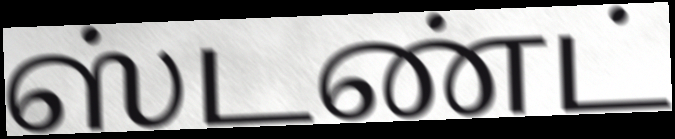
ஸ்டண்ட்